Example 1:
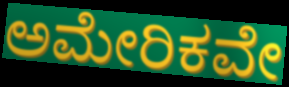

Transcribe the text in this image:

ಅಮೇರಿಕವೇ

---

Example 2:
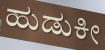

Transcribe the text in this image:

ಹುಡುಕೀ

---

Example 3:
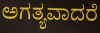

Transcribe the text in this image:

ಅಗತ್ಯವಾದರೆ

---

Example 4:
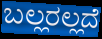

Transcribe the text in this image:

ಬಲ್ಲರಲ್ಲದೆ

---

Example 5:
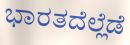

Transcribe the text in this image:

ಭಾರತದೆಲ್ಲೆಡೆ